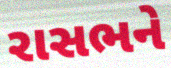
રાસભને